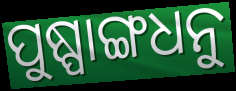
ପୁଷ୍ପାଙ୍ଗଧନୁ